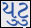
યુટુ